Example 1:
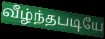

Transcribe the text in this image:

வீழ்ந்தபடியே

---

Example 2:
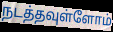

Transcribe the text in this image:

நடத்தவுள்ளோம்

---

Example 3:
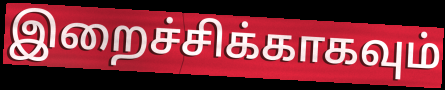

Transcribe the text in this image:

இறைச்சிக்காகவும்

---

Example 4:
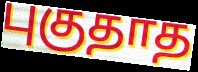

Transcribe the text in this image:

புகுதாத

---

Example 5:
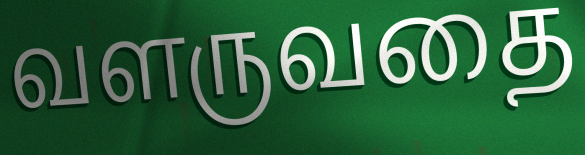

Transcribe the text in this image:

வளருவதை